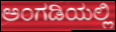
ಅಂಗಡಿಯಲ್ಲಿ